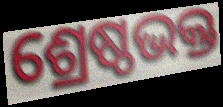
ଶ୍ରେଷ୍ଠଭକ୍ତ